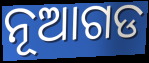
ନୂଆଗଡ